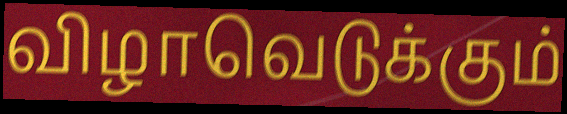
விழாவெடுக்கும்